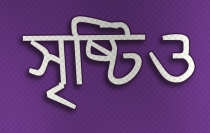
সৃষ্টিও